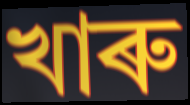
খাৰু